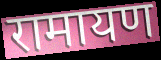
रामायण